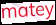
matey